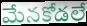
మేనకోడలే